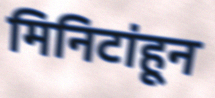
मिनिटांहून